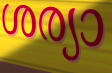
ശര്യാ